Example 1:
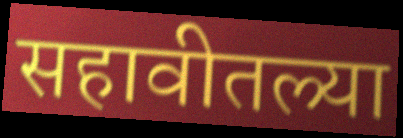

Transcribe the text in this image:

सहावीतल्या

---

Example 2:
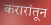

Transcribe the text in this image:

करारांतून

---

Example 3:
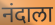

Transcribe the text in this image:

नंदाला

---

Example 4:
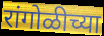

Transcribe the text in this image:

रांगोळीच्या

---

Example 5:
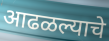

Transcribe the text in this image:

आढळल्याचे